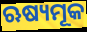
ଋଷ୍ୟମୂକ